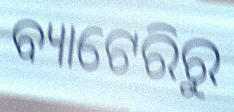
ବ୍ୟାଟେରିରୁ